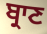
ਬ੍ਰਾਣ